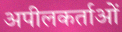
अपीलकर्ताओं